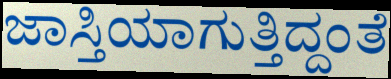
ಜಾಸ್ತಿಯಾಗುತ್ತಿದ್ದಂತೆ